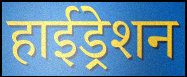
हाईड्रेशन